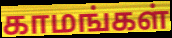
காமங்கள்